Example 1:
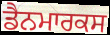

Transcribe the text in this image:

ਡੈਨਮਾਰਕਸ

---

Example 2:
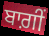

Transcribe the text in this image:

ਬਾਗ਼ੀਂ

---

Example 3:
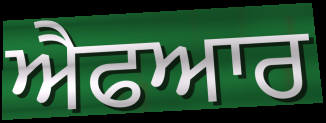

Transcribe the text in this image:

ਐਫਆਰ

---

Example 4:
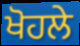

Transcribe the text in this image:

ਖੋਹਲੇ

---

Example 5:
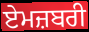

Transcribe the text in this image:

ਏਮਜ਼ਬਰੀ